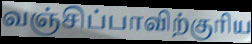
வஞ்சிப்பாவிற்குரிய